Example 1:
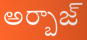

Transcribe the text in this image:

అర్బాజ్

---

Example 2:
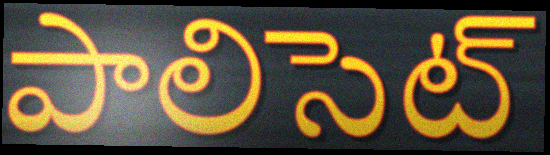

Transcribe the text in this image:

పాలిసెట్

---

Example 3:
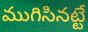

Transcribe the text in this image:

ముగిసినట్టే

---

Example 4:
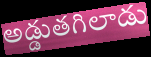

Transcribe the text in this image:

అడ్డుతగిలాడు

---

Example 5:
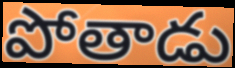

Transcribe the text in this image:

పోతాడు